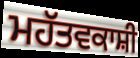
ਮਹੱਤਵਕਾਸ਼ੀ